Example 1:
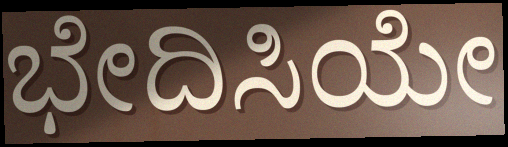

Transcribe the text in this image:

ಭೇದಿಸಿಯೇ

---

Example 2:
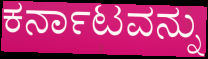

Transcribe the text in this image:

ಕರ್ನಾಟವನ್ನು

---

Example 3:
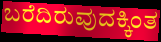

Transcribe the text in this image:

ಬರೆದಿರುವುದಕ್ಕಿಂತ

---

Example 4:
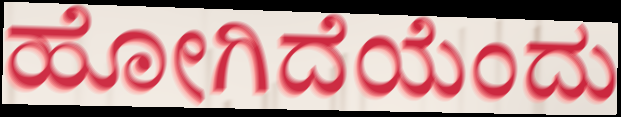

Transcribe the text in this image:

ಹೋಗಿದೆಯೆಂದು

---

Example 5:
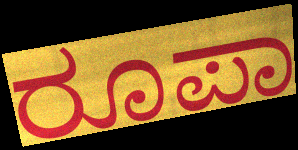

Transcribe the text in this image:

ರೂಪಾ